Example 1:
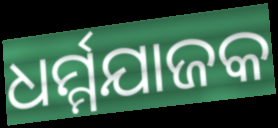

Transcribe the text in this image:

ଧର୍ମ୍ମଯାଜକ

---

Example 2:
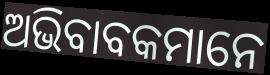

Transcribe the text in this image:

ଅଭିବାବକମାନେ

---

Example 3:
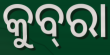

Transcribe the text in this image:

କୁବ୍‍ରା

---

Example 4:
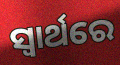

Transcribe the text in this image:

ସ୍ବାର୍ଥରେ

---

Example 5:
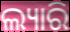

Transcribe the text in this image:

ଲ୍ୟାରି